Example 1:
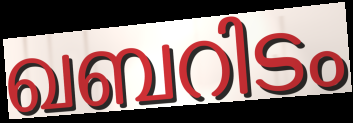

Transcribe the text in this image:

ഖബറിടം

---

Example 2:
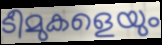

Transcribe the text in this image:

ടീമുകളെയും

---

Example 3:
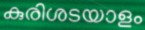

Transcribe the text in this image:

കുരിശടയാളം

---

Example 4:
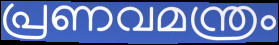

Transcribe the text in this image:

പ്രണവമന്ത്രം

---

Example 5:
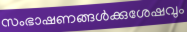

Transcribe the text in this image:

സംഭാഷണങ്ങൾക്കുശേഷവും